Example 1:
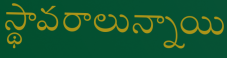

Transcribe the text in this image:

స్థావరాలున్నాయి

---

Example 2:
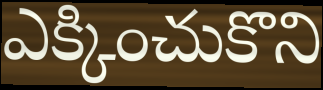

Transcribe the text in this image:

ఎక్కించుకొని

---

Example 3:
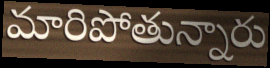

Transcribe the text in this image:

మారిపోతున్నారు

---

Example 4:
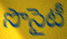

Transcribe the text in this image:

సొసైటీ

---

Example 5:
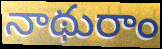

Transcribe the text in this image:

నాథురాం